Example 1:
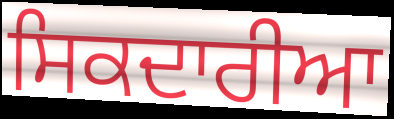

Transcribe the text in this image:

ਸਿਕਦਾਰੀਆ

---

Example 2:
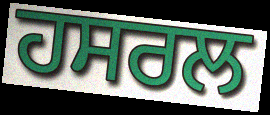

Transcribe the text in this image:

ਹਸਰਲ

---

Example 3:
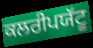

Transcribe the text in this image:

ਕਲਰੀਪਯੱਟੂ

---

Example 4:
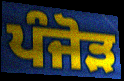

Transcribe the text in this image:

ਪੰਜੋੜ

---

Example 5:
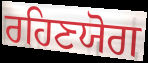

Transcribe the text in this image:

ਰਹਿਣਯੋਗ